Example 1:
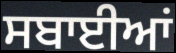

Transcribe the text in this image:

ਸਬਾਈਆਂ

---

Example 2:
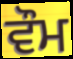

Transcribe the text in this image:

ਵੌਮ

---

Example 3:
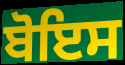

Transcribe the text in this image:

ਬੋਇਸ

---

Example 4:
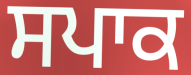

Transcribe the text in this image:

ਸਪਾਕ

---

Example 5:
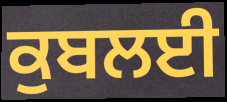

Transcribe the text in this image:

ਕੁਬਲਈ